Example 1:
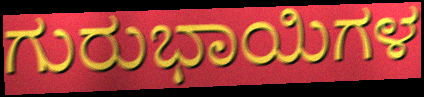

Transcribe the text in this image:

ಗುರುಭಾಯಿಗಳ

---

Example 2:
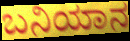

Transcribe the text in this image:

ಬನಿಯಾನ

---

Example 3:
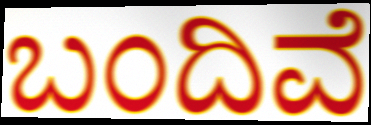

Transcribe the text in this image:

ಬಂದಿವೆ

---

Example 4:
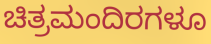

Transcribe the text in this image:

ಚಿತ್ರಮಂದಿರಗಳೂ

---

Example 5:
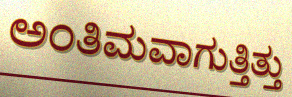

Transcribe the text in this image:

ಅಂತಿಮವಾಗುತ್ತಿತ್ತು